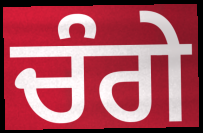
ਚੰਗੇ